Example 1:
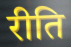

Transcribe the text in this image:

रीति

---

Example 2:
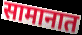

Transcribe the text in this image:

सामानात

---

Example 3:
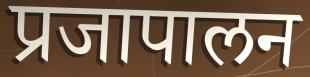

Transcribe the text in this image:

प्रजापालन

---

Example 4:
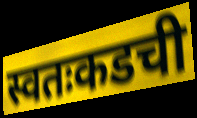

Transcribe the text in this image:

स्वतःकडची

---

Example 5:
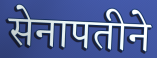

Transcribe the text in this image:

सेनापतीने